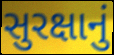
સુરક્ષાનું